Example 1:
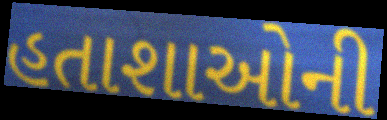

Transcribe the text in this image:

હતાશાઓની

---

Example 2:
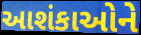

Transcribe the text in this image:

આશંકાઓને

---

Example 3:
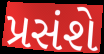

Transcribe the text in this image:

પ્રસંશે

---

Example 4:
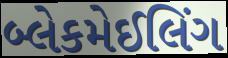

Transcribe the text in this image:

બ્લેકમેઈલિંગ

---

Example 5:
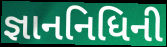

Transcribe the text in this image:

જ્ઞાનનિધિની